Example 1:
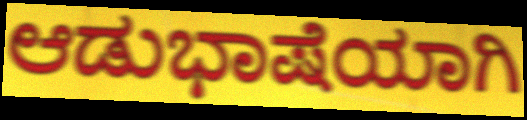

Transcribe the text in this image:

ಆಡುಭಾಷೆಯಾಗಿ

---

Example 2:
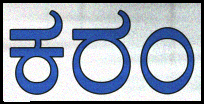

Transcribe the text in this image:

ಕರಂ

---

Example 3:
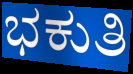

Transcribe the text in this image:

ಭಕುತಿ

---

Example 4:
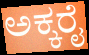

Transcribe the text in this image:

ಅಕ್ಕರೈ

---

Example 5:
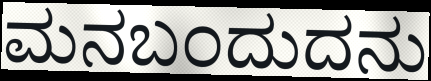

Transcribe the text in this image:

ಮನಬಂದುದನು